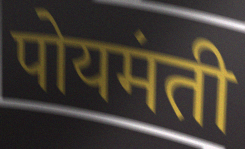
पोयमंती